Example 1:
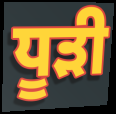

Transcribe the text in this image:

ਧੂੜੀ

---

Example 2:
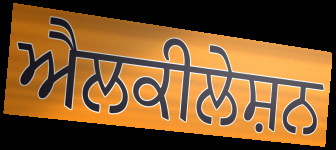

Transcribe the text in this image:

ਐਲਕੀਲੇਸ਼ਨ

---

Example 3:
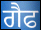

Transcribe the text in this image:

ਗੈਫ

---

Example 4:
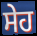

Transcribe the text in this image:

ਸੇਹ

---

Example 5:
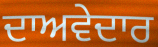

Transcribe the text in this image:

ਦਾਅਵੇਦਾਰ